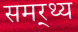
समर्थ्य